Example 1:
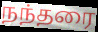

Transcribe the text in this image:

நந்தரை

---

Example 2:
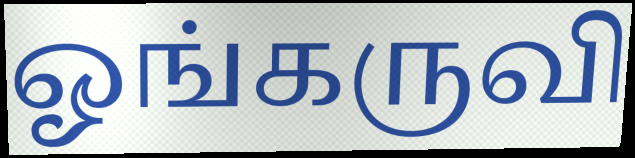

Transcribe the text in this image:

ஓங்கருவி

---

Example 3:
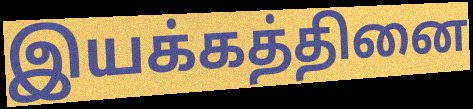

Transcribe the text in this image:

இயக்கத்தினை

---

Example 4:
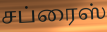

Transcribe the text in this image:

சப்ரைஸ்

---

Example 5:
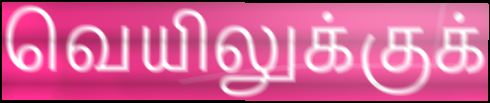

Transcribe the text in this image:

வெயிலுக்குக்